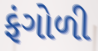
ફંગોળી